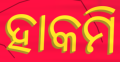
ହାକମି